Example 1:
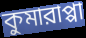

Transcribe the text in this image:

কুমারাপ্পা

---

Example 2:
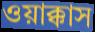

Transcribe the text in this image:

ওয়াক্কাস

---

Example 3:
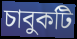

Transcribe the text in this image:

চাবুকটি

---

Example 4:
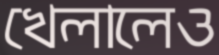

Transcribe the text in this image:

খেলালেও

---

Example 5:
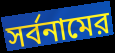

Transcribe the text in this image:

সর্বনামের